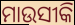
ମାଉସୀକି